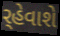
ર્‌હેવાશે